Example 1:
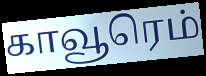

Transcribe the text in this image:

காவூரெம்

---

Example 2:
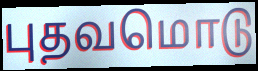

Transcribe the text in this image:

புதவமொடு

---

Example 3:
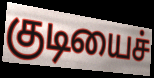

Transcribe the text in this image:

குடியைச்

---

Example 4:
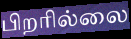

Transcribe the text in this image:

பிறரில்லை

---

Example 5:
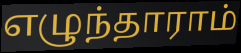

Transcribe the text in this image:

எழுந்தாராம்